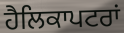
ਹੈਲਿਕਾਪਟਰਾਂ